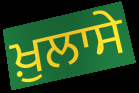
ਖ਼ੁਲਾਸੇ